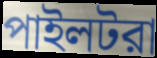
পাইলটরা